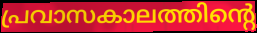
പ്രവാസകാലത്തിന്റെ